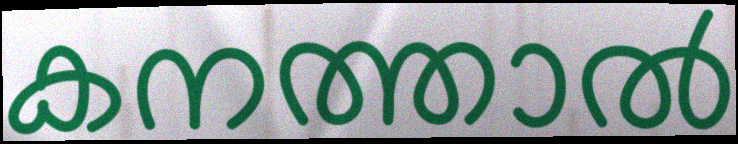
കനത്താൽ